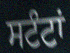
ਸਟੰਟਾਂ